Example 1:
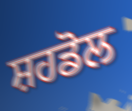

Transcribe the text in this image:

ਸ਼ਹਡੋਲ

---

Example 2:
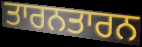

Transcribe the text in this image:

ਤਾਰਨਤਾਰਨ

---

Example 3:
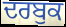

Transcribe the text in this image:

ਦਰਬੁਕ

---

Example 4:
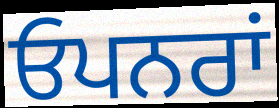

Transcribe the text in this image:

ਓਪਨਰਾਂ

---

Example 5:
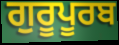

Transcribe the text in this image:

ਗੁਰੂਪੂਰਬ